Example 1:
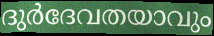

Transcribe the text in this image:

ദുർദേവതയാവും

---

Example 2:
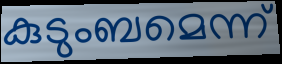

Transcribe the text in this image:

കുടുംബമെന്ന്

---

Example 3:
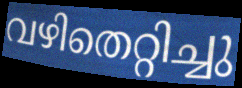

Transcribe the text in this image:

വഴിതെറ്റിച്ചു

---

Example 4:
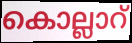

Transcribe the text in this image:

കൊല്ലാറ്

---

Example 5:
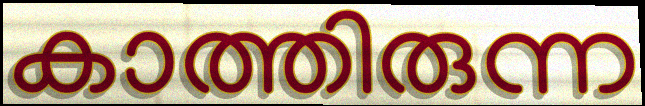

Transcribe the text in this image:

കാത്തിരുന്ന